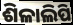
ଶିଳାଲିପି